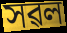
সৱল